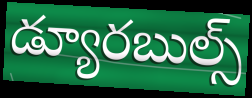
డ్యూరబుల్స్